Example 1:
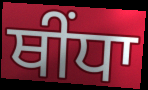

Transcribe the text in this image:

ਥੀਂਧਾ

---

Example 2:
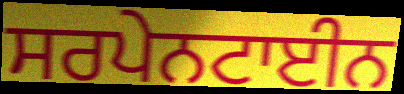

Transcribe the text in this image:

ਸਰਪੇਨਟਾਈਨ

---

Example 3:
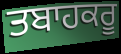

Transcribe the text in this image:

ਤਬਾਹਕਰੂ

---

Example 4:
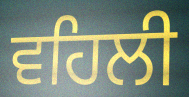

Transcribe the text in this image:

ਵਹਿਲੀ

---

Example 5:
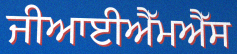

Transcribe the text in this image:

ਜੀਆਈਐੱਮਐੱਸ